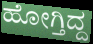
ಹೋಗ್ತಿದ್ದ